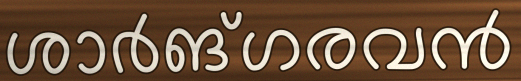
ശാർങ്ഗരവൻ